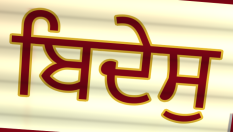
ਬਿਦੇਸੁ